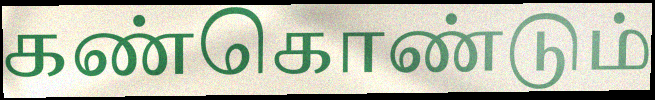
கண்கொண்டும்